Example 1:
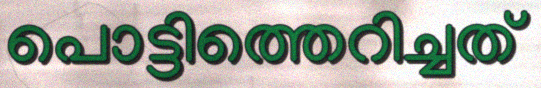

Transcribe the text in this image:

പൊട്ടിത്തെറിച്ചത്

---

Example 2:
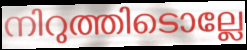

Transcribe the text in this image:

നിറുത്തിടൊല്ലേ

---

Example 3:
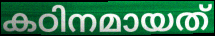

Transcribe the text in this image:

കഠിനമായത്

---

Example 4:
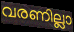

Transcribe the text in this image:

വരണില്ലാ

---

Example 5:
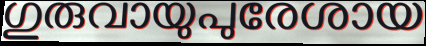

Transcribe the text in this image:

ഗുരുവായുപുരേശായ